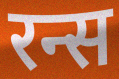
रन्स